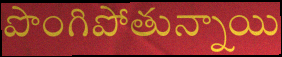
పొంగిపోతున్నాయి